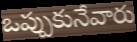
ఒప్పుకునేవారు